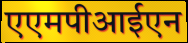
एएमपीआईएन